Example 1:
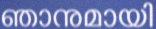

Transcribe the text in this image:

ഞാനുമായി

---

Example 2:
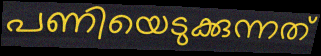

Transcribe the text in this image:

പണിയെടുക്കുന്നത്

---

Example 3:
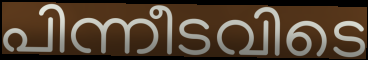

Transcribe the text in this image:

പിന്നീടവിടെ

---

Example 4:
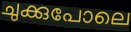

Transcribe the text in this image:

ചുക്കുപോലെ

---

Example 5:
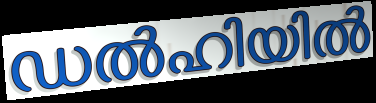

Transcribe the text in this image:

ഡൽഹിയിൽ